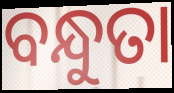
ବନ୍ଧୁତା